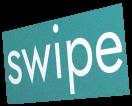
swipe